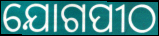
ଯୋଗପୀଠ